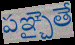
పఞ్చైతే